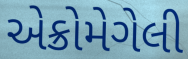
એક્રોમેગેલી